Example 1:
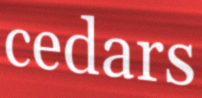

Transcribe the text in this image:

cedars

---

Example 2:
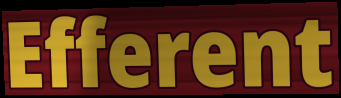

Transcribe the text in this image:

Efferent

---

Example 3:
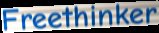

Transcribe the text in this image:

Freethinker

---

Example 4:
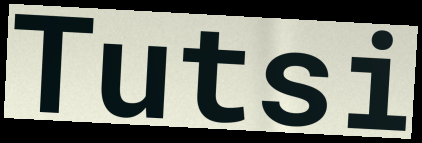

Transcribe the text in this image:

Tutsi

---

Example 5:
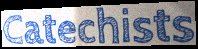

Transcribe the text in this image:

Catechists